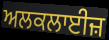
ਅਲਕਲਾਈਜ਼